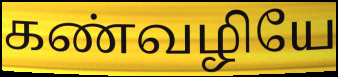
கண்வழியே